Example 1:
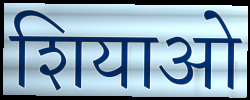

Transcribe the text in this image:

शियाओ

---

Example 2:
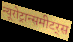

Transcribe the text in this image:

न्यूरोट्रान्समीटर्स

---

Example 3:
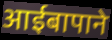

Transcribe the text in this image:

आईबापाने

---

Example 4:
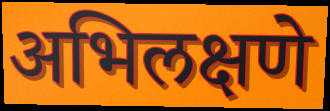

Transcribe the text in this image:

अभिलक्षणे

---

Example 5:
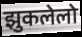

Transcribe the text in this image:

झुकलेलो